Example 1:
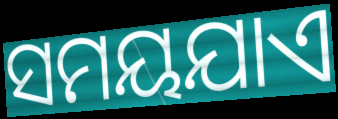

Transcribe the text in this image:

ସମୟଯାଏ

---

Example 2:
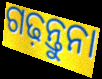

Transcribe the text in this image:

ଗଢ଼ନ୍ତୁନା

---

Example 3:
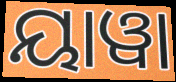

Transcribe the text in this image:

ୟାୱା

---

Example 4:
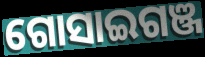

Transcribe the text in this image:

ଗୋସାଇଗଞ୍ଜ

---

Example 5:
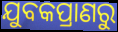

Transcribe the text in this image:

ଯୁବକପ୍ରାଣରୁ